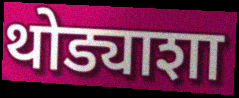
थोड्याशा